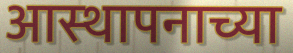
आस्थापनाच्या